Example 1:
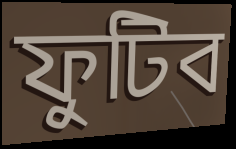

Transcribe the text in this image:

ফুটিব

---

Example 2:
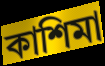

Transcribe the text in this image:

কাশিমা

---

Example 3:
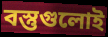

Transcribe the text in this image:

বস্তুগুলোই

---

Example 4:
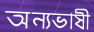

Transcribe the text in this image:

অন্যভাষী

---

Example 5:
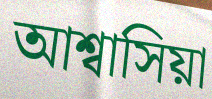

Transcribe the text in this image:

আশ্বাসিয়া